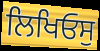
ਲਿਖਿਓਸੁ